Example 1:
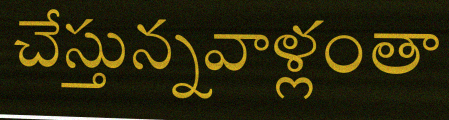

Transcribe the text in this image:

చేస్తున్నవాళ్లంతా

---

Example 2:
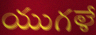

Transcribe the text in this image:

యుగళే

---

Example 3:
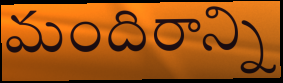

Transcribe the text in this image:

మందిరాన్ని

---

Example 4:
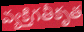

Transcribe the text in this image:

వ్యక్తిగతీకృత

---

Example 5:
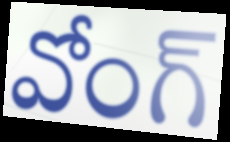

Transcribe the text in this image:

వోంగ్